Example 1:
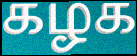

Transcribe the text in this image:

கழக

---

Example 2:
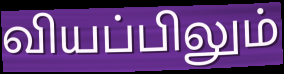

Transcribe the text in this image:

வியப்பிலும்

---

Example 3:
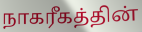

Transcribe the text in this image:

நாகரீகத்தின்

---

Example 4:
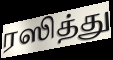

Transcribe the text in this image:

ரஸித்து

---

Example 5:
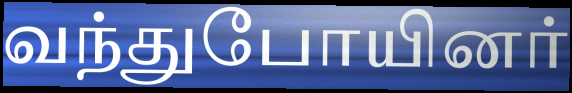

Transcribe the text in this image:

வந்துபோயினர்